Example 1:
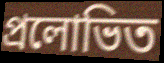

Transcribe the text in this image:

প্ৰলোভিত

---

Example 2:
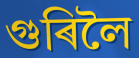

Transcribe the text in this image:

গুৰিলৈ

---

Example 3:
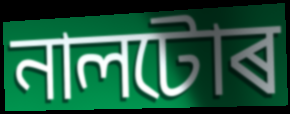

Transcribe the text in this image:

নালটোৰ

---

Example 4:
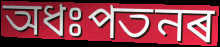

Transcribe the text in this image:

অধঃপতনৰ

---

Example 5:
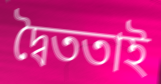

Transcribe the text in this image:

দ্বৈততাই